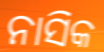
ନାସିକ